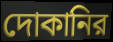
দোকানির